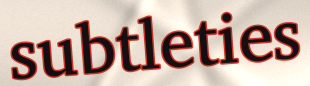
subtleties